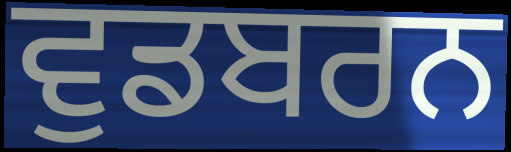
ਵੁਡਬਰਨ